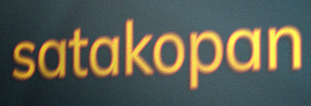
satakopan